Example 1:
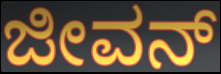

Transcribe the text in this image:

ಜೀವನ್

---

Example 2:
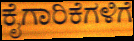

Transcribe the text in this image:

ಕೈಗಾರಿಕೆಗಳಿಗೆ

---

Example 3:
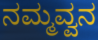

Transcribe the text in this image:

ನಮ್ಮವ್ವನ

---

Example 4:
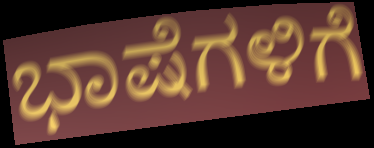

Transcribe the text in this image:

ಭಾಷೆಗಳಿಗೆ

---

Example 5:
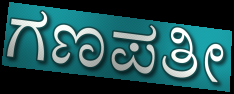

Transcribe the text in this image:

ಗಣಪತೀ